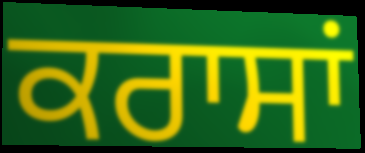
ਕਰਾਸਾਂ